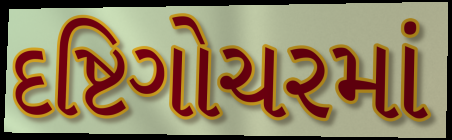
દષ્ટિગોચરમાં